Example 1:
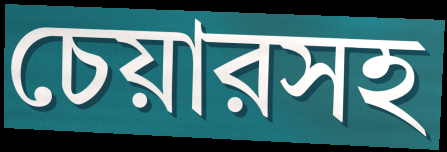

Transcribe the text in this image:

চেয়ারসহ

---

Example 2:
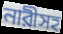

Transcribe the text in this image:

নারীসহ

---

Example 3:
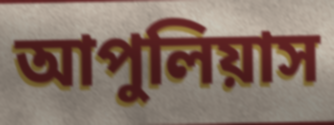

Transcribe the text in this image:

আপুলিয়াস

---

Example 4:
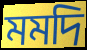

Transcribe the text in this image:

মমদি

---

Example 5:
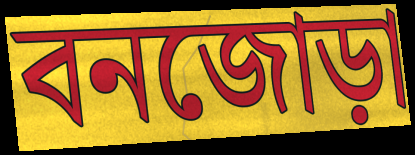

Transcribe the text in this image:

বনজোড়া